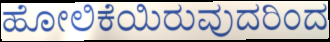
ಹೋಲಿಕೆಯಿರುವುದರಿಂದ